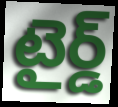
టైర్డ్